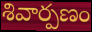
శివార్పణం